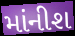
માંનીશ